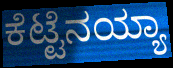
ಕೆಟ್ಟೆನಯ್ಯಾ